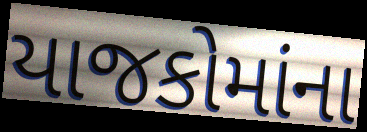
યાજકોમાંના